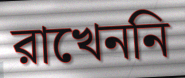
রাখেননি